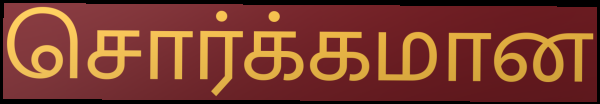
சொர்க்கமான